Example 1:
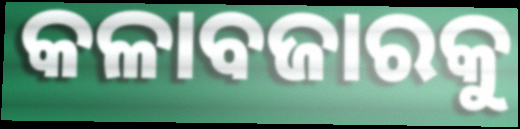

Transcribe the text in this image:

କଳାବଜାରକୁ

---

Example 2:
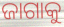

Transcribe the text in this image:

ଜାଗାକୁ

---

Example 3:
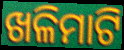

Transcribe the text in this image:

ଖଳିମାଟି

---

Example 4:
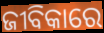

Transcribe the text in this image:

ଜୀବିକାରେ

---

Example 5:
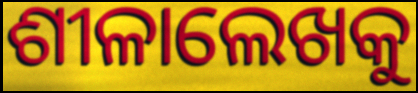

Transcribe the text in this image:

ଶୀଳାଲେଖକୁ